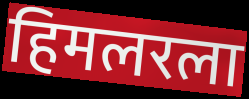
हिमलरला